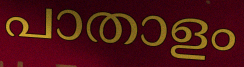
പാതാളം